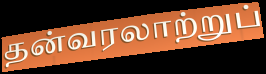
தன்வரலாற்றுப்